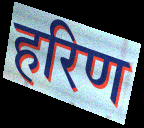
हरिण